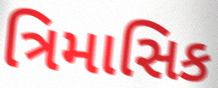
ત્રિમાસિક